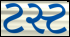
ટસ્ટ